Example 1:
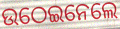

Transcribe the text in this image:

ଉଠେଇନେଲେ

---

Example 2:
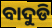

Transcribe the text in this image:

ବାଦୁଡି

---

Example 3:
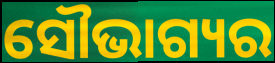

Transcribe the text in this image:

ସୌଭାଗ୍ୟର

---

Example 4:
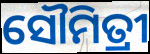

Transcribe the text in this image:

ସୌମିତ୍ରୀ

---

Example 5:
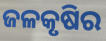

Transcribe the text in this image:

ଜଳକୃଷିର